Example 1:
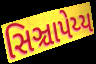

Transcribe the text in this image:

સિઞ્ચાપેય્ય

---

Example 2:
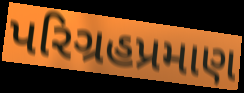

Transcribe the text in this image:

પરિગ્રહપ્રમાણ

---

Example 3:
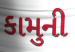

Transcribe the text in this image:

કામુની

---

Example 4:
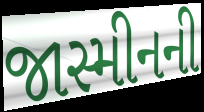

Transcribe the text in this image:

જાસ્મીનની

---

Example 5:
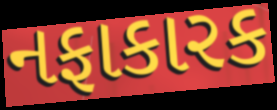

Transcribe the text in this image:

નફાકારક